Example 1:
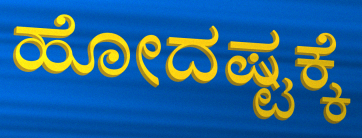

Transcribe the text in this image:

ಹೋದಷ್ಟಕ್ಕೆ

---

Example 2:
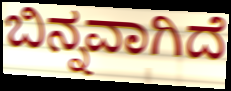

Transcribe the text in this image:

ಬಿನ್ನವಾಗಿದೆ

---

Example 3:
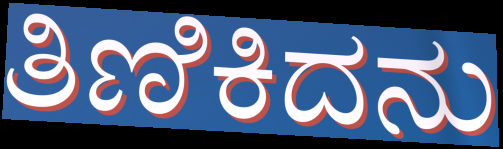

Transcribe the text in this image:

ತಿಣಿಕಿದನು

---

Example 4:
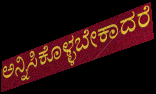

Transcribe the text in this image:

ಅನ್ನಿಸಿಕೊಳ್ಳಬೇಕಾದರೆ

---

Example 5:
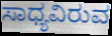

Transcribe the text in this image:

ಸಾಧ್ಯವಿರುವ